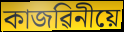
কাজৱিনীয়ে